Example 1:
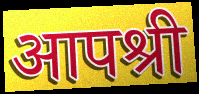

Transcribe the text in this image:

आपश्री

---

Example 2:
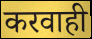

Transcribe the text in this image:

करवाही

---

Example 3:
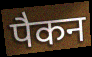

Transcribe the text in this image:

पैकन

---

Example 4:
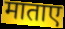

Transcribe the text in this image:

माताए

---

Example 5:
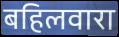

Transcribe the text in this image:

बहिलवारा